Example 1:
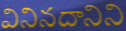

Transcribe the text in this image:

వినినదానిని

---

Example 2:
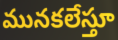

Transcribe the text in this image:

మునకలేస్తూ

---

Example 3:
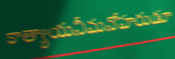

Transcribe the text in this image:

కాత్యాయనీమనోహరుడూ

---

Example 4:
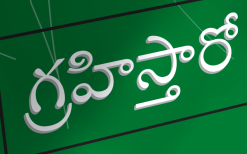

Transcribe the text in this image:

గ్రహిస్తారో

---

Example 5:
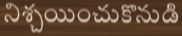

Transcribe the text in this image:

నిశ్చయించుకొనుడి